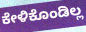
ಕೇಳಿಕೊಂಡಿಲ್ಲ